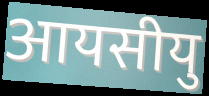
आयसीयु